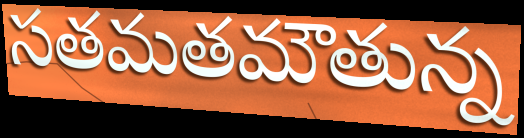
సతమతమౌతున్న